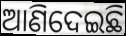
ଆଣିଦେଇଛି